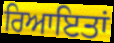
ਰਿਆਇਤਾਂ